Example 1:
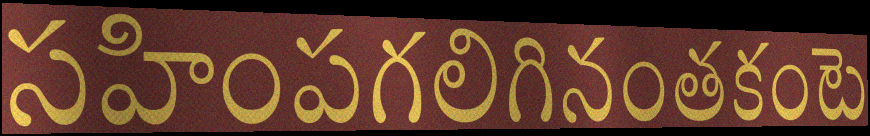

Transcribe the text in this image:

సహింపగలిగినంతకంటె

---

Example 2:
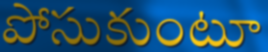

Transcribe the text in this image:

పోసుకుంటూ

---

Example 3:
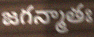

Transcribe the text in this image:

జగన్మాతః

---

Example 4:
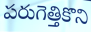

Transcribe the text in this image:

పరుగెత్తికొని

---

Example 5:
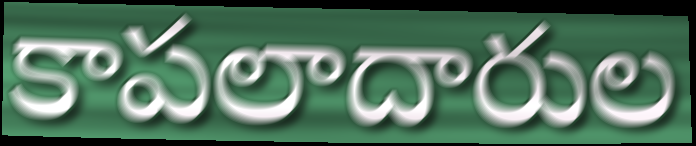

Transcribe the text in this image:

కాపలాదారుల